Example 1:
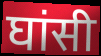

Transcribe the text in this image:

घांसी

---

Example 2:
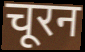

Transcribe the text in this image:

चूरन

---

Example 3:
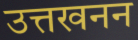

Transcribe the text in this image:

उत्तखनन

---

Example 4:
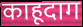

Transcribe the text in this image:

काहूदाग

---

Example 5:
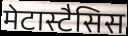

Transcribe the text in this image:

मेटास्टैसिस